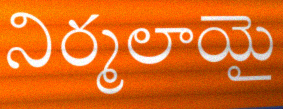
నిర్మలాయై